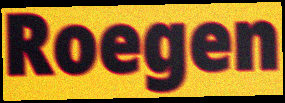
Roegen